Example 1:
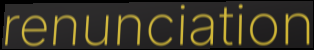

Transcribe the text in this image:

renunciation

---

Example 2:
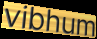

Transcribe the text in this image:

vibhum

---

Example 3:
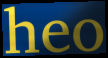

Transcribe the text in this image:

heo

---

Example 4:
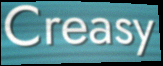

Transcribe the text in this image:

Creasy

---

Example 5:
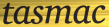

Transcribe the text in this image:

tasmac